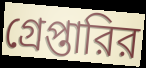
গ্রেপ্তারির